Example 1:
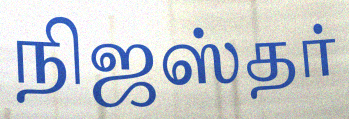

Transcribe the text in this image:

நிஜஸ்தர்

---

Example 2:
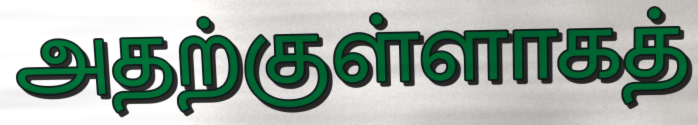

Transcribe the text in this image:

அதற்குள்ளாகத்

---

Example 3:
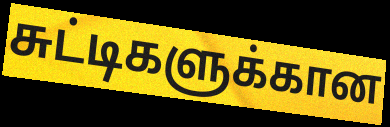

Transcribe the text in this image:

சுட்டிகளுக்கான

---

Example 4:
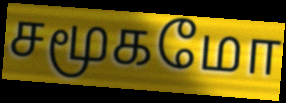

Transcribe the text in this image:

சமூகமோ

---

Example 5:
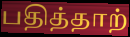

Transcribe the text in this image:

பதித்தாற்